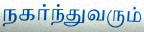
நகர்ந்துவரும்